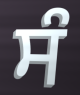
ਸੰ